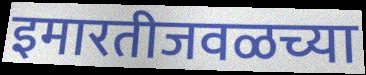
इमारतीजवळच्या